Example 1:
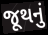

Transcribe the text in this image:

જૂથનું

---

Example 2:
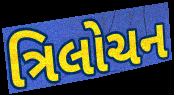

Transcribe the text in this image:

ત્રિલોચન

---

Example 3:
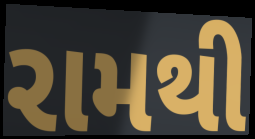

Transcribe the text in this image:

રામથી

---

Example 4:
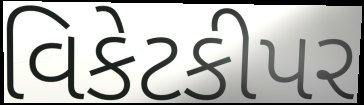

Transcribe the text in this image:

વિકેટકીપર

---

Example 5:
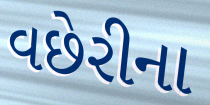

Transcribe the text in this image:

વછેરીના